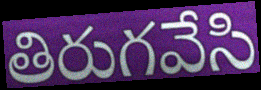
తిరుగవేసి